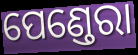
ପେଣ୍ଡେରା